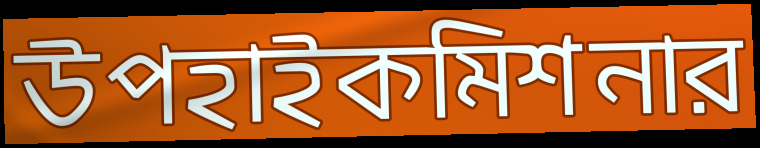
উপহাইকমিশনার